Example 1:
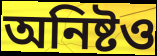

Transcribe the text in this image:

অনিষ্টও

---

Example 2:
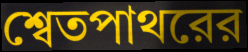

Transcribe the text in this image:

শ্বেতপাথরের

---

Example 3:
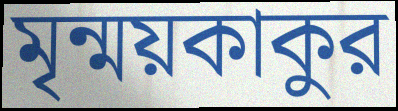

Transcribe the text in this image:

মৃন্ময়কাকুর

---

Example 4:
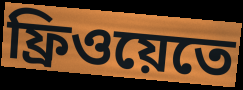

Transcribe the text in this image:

ফ্রিওয়েতে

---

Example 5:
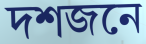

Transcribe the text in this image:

দশজনে